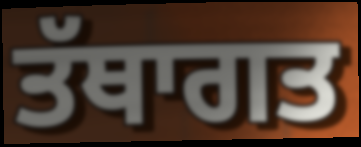
ਤੱਥਾਗਤ